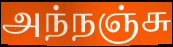
அந்நஞ்சு